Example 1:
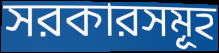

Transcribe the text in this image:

সরকারসমূহ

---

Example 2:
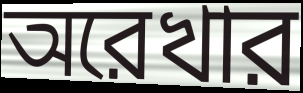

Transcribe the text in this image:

অরেখার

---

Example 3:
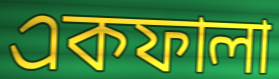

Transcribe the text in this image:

একফালা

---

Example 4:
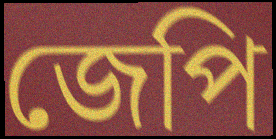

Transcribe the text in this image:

জেপি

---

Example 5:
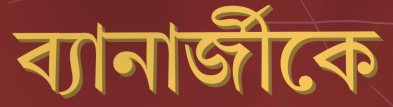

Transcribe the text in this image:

ব্যানার্জীকে